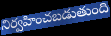
నిర్వహించబడుతుంది